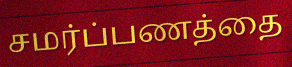
சமர்ப்பணத்தை